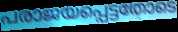
പരാജയപ്പെട്ടതോടെ